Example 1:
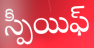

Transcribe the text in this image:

స్పీయిఫ్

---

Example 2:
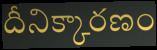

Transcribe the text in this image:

దీనిక్కారణం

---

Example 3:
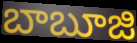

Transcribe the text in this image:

బాబూజి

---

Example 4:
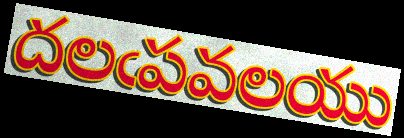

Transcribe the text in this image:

దలఁపవలయు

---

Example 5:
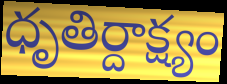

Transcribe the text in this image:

ధృతిర్దాక్ష్యం